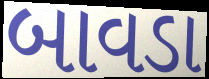
બાવડા